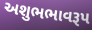
અશુભભાવરૂપ